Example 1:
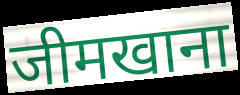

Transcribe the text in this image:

जीमखाना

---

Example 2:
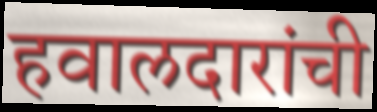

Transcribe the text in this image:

हवालदारांची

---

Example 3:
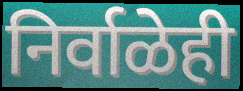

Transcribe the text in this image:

निर्वाळेही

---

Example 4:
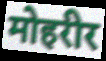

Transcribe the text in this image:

मोहरीर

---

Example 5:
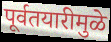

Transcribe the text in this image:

पूर्वतयारीमुळे